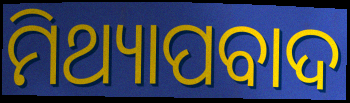
ମିଥ୍ୟାପବାଦ